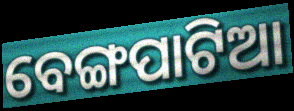
ବେଙ୍ଗପାଟିଆ